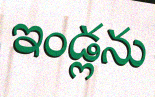
ఇండ్లను